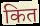
कित